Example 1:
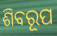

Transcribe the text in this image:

ଶିବରୂପ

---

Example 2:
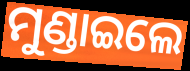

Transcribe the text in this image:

ମୁଣ୍ଡାଇଲେ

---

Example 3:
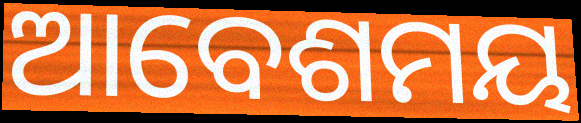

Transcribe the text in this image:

ଆବେଶମୟ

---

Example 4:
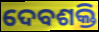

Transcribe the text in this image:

ଦେବଶକ୍ତି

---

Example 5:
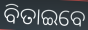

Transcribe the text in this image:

ବିତାଇବେ